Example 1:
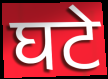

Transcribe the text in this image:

घटे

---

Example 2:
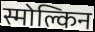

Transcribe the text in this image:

स्मोल्किन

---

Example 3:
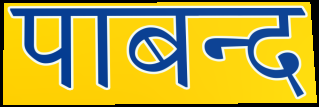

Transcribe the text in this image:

पाबन्द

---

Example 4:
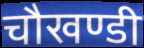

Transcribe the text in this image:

चौखण्डी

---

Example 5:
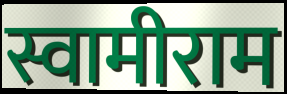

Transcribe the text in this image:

स्वामीराम